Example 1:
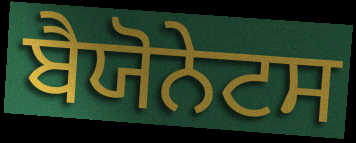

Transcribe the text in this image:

ਬੈਯੋਨੇਟਸ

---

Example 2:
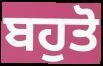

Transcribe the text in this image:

ਬਹੁਤੋ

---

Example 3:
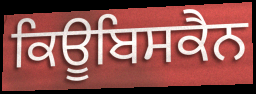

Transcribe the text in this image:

ਕਿਊਬਿਸਕੈਨ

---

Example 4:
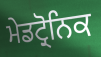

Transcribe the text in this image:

ਮੇਡਟ੍ਰੋਨਿਕ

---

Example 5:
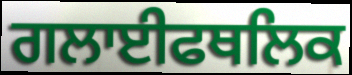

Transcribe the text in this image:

ਗਲਾਈਫਥਲਿਕ